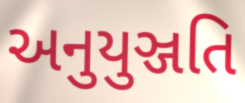
અનુયુઞ્જતિ